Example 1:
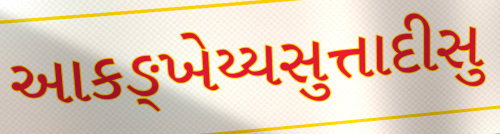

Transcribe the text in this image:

આકઙ્ખેય્યસુત્તાદીસુ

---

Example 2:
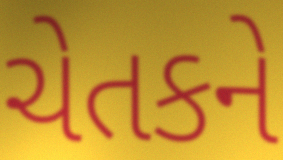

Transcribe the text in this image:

ચેતકને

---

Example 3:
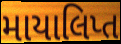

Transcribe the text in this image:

માયાલિપ્ત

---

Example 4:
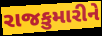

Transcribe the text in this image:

રાજકુમારીને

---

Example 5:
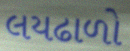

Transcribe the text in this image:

લયઢાળો